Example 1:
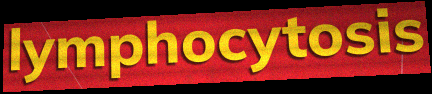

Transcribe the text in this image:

lymphocytosis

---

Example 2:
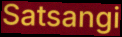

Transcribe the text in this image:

Satsangi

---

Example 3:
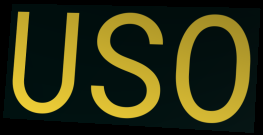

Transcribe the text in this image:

USO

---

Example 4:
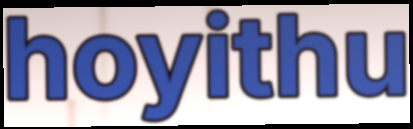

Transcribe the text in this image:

hoyithu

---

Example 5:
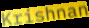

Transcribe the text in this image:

Krishnan